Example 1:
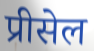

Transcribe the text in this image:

प्रीसेल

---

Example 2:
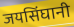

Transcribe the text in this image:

जयसिंघानी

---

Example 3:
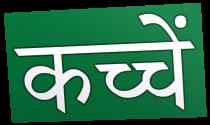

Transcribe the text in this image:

कच्चें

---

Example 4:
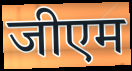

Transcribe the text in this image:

जीएम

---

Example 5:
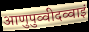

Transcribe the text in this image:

आणुपुव्वीदव्वाइं